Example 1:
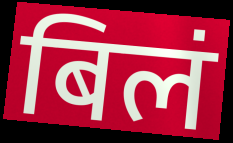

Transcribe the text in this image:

बिलं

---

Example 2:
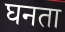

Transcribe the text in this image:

घनता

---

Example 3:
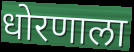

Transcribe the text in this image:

धोरणाला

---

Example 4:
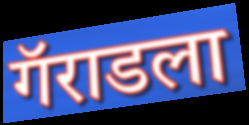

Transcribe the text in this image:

गॅराडला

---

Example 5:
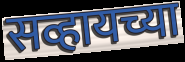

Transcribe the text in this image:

सव्हायच्या